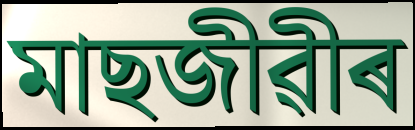
মাছজীৱীৰ